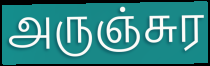
அருஞ்சுர